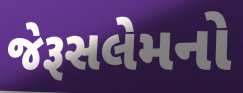
જેરૂસલેમનો